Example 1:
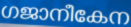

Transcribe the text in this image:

ഗജാനീകേന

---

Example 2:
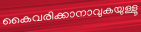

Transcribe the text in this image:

കൈവരിക്കാനാവുകയുള്ളൂ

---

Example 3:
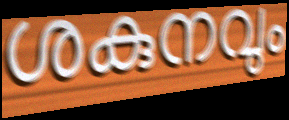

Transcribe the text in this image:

ശകുനവും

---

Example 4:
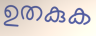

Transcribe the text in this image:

ഉതകുക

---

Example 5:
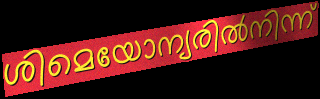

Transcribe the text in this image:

ശിമെയോന്യരിൽനിന്ന്